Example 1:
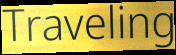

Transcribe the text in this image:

Traveling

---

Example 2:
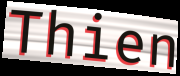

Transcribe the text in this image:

Thien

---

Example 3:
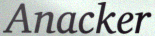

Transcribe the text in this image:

Anacker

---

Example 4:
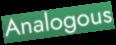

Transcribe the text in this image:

Analogous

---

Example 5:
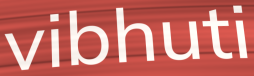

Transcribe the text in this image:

vibhuti